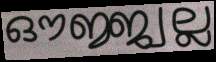
ഔജ്ജ്വല്ല